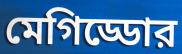
মেগিড্ডোর